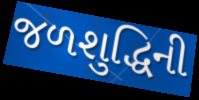
જળશુદ્ધિની